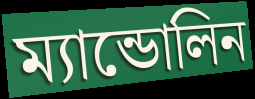
ম্যান্ডোলিন